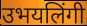
उभयलिंगी